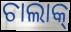
ଚାଲାକ୍